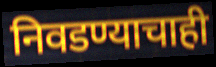
निवडण्याचाही